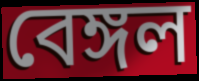
বেঙ্গল